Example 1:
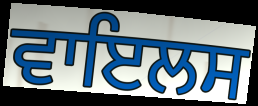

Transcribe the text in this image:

ਵਾਇਲਸ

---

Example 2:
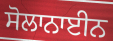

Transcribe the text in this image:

ਸੋਲਾਨਾਈਨ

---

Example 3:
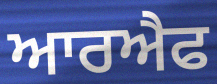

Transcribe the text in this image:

ਆਰਐਫ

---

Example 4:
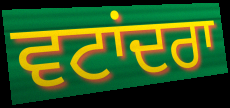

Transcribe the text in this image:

ਵਟਾਂਦਰਾ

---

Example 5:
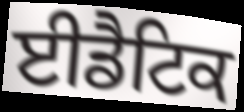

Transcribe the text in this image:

ਈਡੈਟਿਕ